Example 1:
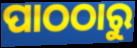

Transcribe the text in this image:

ପାଠଠାରୁ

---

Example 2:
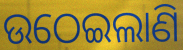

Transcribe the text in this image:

ଉଠେଇଲାଣି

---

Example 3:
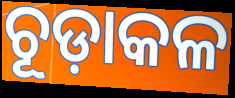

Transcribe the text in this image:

ଚୂଡ଼ାକଳ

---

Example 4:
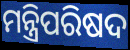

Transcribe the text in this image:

ମନ୍ତ୍ରିପରିଷଦ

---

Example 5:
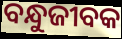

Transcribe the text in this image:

ବନ୍ଧୁଜୀବକ